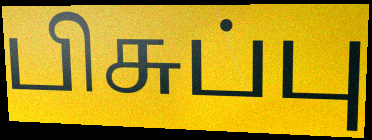
பிசுப்பு